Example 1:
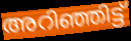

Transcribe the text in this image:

അറിഞ്ഞിട്ട്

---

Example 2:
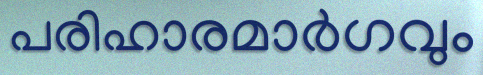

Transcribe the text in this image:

പരിഹാരമാർഗവും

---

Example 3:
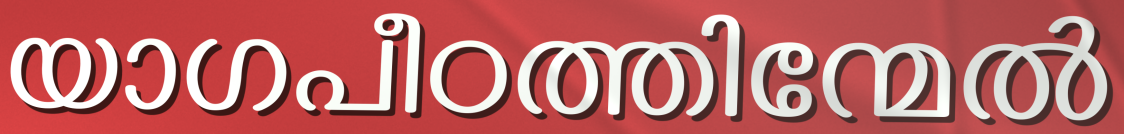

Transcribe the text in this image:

യാഗപീഠത്തിന്മേൽ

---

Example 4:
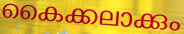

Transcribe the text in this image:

കൈക്കലാക്കും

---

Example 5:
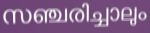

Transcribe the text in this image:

സഞ്ചരിച്ചാലും